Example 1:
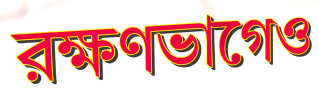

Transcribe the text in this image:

রক্ষণভাগেও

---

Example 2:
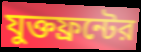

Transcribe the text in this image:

যুক্তফ্রন্টের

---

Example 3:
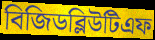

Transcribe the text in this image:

বিজিডব্লিউটিএফ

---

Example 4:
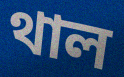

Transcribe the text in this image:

থাল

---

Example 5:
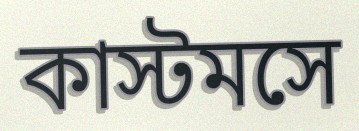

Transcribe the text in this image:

কাস্টমসে